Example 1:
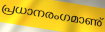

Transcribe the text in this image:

പ്രധാനരംഗമാണു്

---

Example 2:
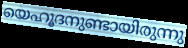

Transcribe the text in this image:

യെഹൂദനുണ്ടായിരുന്നു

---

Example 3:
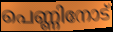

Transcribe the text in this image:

പെണ്ണിനോട്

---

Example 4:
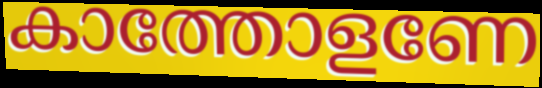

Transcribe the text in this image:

കാത്തോളണേ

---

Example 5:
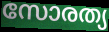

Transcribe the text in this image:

സോരത്യ